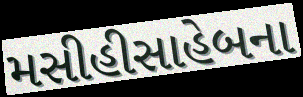
મસીહીસાહેબના